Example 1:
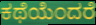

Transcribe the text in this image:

ಕಥೆಯೆಂದರೆ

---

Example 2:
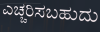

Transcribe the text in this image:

ಎಚ್ಚರಿಸಬಹುದು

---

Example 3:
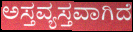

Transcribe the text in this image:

ಅಸ್ತವ್ಯಸ್ತವಾಗಿದೆ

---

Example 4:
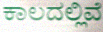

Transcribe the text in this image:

ಕಾಲದಲ್ಲಿವೆ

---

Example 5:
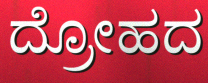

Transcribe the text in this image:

ದ್ರೋಹದ